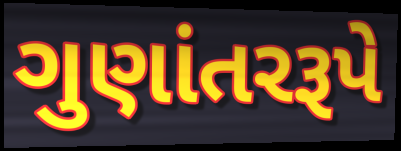
ગુણાંતરરૂપે